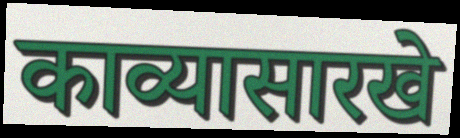
काव्यासारखे